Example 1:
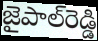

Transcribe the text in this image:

జైపాల్‌రెడ్డి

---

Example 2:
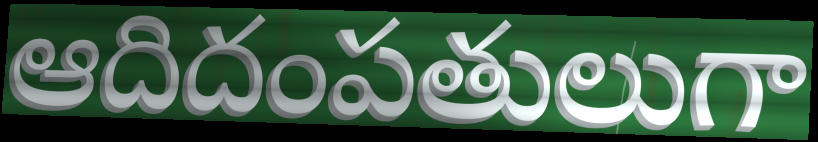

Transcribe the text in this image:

ఆదిదంపతులుగా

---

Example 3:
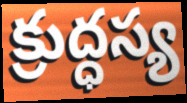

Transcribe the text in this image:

క్రుద్ధస్య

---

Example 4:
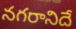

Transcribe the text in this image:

నగరానిదే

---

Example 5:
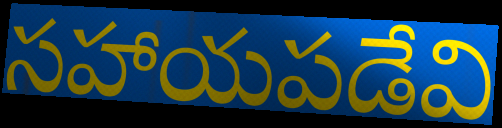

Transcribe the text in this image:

సహాయపడేవి